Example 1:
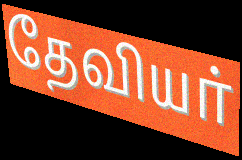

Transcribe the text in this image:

தேவியர்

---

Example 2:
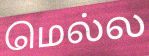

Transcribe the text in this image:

மெல்ல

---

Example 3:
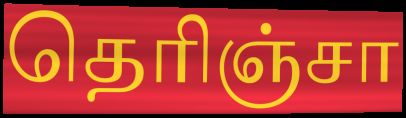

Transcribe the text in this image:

தெரிஞ்சா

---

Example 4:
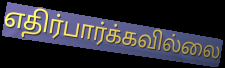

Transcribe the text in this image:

எதிர்பார்க்கவில்லை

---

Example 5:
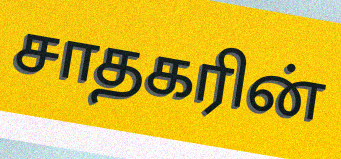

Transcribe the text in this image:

சாதகரின்